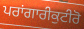
ਪਰਾਂਗਾਰੀਕੁਟੀਰੋ